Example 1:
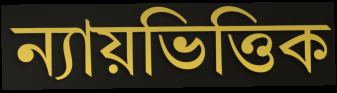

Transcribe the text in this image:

ন্যায়ভিত্তিক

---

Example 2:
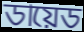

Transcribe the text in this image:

ডায়েড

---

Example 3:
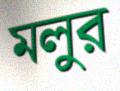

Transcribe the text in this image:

মলুর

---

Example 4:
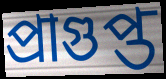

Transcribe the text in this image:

প্রাগুপ্ত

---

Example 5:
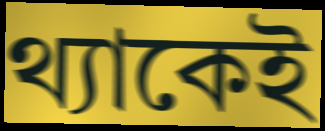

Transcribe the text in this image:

থ্যাকেই